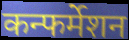
कन्फर्मेशन